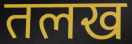
तलख